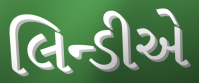
લિન્ડીએ